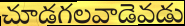
చూడగలవాడెవడు